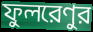
ফুলরেণুর